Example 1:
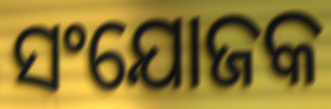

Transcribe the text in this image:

ସଂଯୋଜକ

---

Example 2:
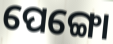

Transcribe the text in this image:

ପେଙ୍ଗୋ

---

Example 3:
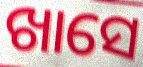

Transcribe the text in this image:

ଖାସେ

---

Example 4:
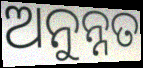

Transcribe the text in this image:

ଅନୁନ୍ନତ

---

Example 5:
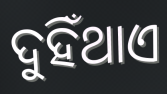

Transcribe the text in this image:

ଦୁହିଁଥାଏ